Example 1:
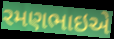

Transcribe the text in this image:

રમણભાઇએ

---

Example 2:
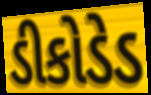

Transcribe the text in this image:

ડીકોડેડ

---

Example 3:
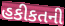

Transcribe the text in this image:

હકીકતની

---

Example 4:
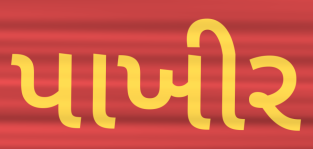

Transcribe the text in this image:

પાખીર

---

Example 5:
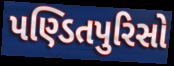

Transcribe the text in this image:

પણ્ડિતપુરિસો